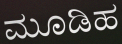
ಮೂಡಿಹ